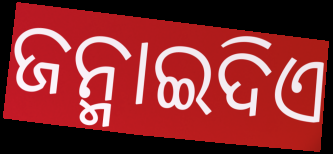
ଜନ୍ମାଇଦିଏ